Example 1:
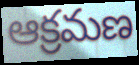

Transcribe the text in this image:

ఆక్రమణ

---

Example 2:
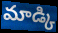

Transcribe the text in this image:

మాడ్కి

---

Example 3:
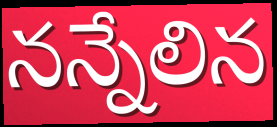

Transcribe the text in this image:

నన్నేలిన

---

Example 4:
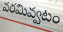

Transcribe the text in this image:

వరమివ్వటం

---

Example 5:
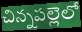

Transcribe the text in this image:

చిన్నపల్లెలో